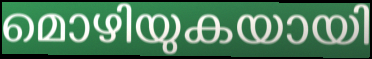
മൊഴിയുകയായി